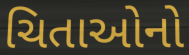
ચિતાઓનો